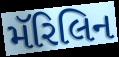
મૅરિલિન